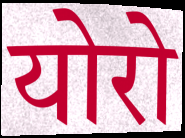
योरो